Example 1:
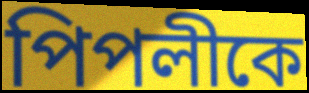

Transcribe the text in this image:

পিপলীকে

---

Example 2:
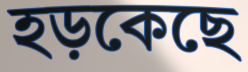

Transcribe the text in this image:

হড়কেছে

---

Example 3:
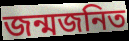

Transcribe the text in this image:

জন্মজনিত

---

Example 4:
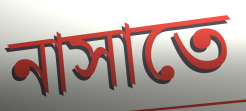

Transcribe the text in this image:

নাসাতে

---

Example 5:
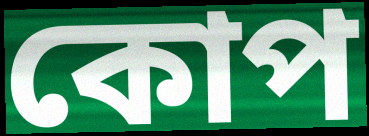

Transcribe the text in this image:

কোপ